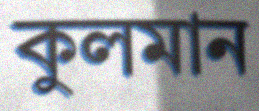
কুলমান